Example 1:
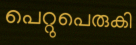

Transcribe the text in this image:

പെറ്റുപെരുകി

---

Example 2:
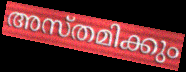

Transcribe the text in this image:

അസ്തമിക്കും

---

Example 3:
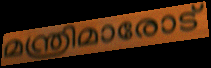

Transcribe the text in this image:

മന്ത്രിമാരോട്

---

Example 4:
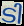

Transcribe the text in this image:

ടി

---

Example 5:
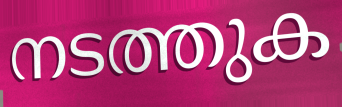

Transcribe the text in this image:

നടത്തുക